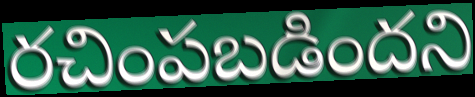
రచింపబడిందని